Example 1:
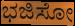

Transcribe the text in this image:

ಭಜಿಸೋ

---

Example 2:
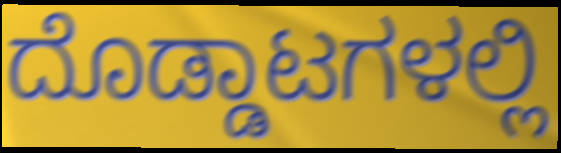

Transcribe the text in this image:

ದೊಡ್ಡಾಟಗಳಲ್ಲಿ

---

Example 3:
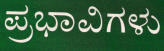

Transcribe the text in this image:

ಪ್ರಭಾವಿಗಳು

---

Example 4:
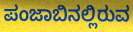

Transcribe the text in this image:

ಪಂಜಾಬಿನಲ್ಲಿರುವ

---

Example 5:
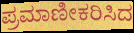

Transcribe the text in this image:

ಪ್ರಮಾಣೀಕರಿಸಿದ